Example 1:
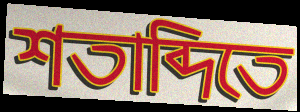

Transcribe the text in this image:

শতাব্দিতে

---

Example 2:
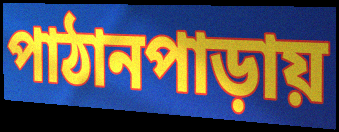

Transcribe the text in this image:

পাঠানপাড়ায়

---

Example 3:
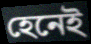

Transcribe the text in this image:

হেনেই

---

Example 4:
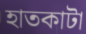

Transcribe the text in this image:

হাতকাটা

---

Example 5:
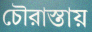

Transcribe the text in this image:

চৌরাস্তায়